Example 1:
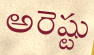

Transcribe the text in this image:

అరెష్టు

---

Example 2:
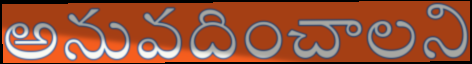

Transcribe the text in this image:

అనువదించాలని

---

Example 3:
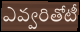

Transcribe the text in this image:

ఎవ్వరితోటీ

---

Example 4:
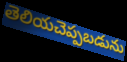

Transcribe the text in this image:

తెలియచెప్పబడును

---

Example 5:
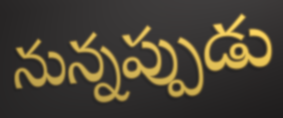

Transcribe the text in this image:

నున్నప్పుడు